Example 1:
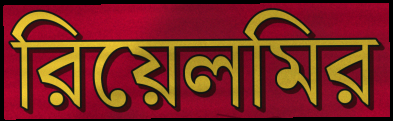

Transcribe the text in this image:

রিয়েলমির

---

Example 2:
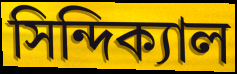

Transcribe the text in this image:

সিন্দিক্যাল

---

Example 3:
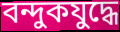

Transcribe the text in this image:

বন্দুকযুদ্ধে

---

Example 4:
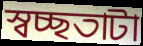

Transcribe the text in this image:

স্বচ্ছতাটা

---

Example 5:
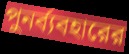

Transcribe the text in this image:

পুনর্ব্যবহারের